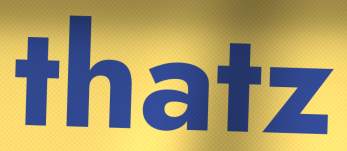
thatz